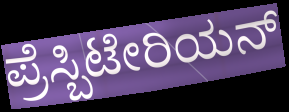
ಪ್ರೆಸ್ಬಿಟೇರಿಯನ್